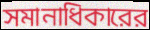
সমানাধিকারের